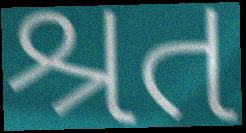
શ્રત